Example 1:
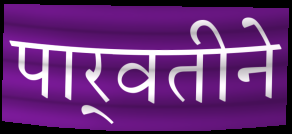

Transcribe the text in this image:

पार्वतीने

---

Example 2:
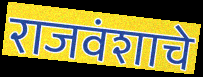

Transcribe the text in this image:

राजवंशाचे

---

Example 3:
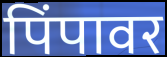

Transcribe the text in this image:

पिंपावर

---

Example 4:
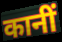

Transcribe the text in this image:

कानीं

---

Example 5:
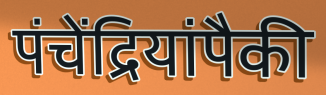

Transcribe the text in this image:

पंचेंद्रियांपैकी